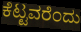
ಕೆಟ್ಟವರೆಂದು